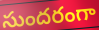
సుందరంగా